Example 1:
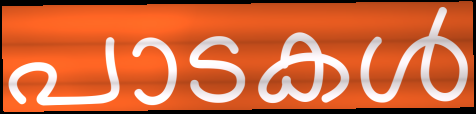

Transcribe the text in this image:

പാടകൾ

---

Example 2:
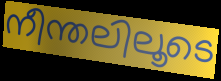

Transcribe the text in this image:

നീന്തലിലൂടെ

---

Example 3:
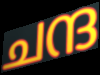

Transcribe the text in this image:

ചന്ദ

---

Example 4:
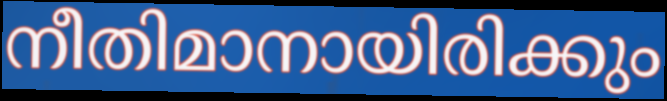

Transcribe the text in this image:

നീതിമാനായിരിക്കും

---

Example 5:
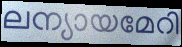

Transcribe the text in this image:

ലന്യായമേറി